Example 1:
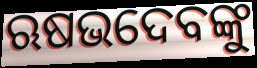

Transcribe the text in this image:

ଋଷଭଦେବଙ୍କୁ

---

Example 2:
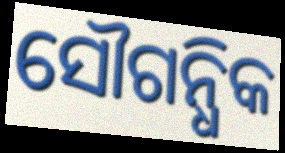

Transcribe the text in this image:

ସୌଗନ୍ଧିକ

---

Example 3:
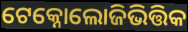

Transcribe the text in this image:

ଟେକ୍ନୋଲୋଜିଭିତ୍ତିକ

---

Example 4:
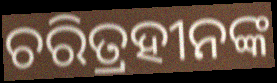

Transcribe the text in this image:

ଚରିତ୍ରହୀନଙ୍କ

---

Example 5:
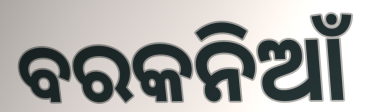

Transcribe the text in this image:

ବରକନିଆଁ